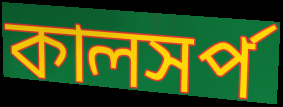
কালসর্প